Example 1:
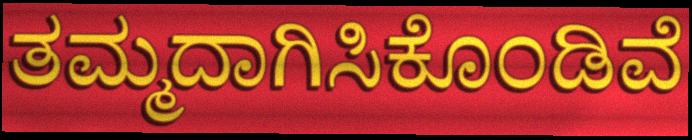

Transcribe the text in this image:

ತಮ್ಮದಾಗಿಸಿಕೊಂಡಿವೆ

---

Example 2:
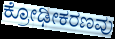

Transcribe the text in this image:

ಕ್ರೋಢೀಕರಣವು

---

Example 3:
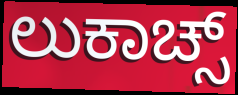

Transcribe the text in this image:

ಲುಕಾಚ್ಸ್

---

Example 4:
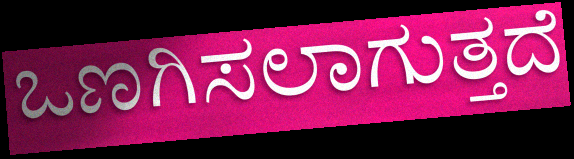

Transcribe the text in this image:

ಒಣಗಿಸಲಾಗುತ್ತದೆ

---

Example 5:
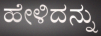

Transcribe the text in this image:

ಹೇಳಿದನ್ನು